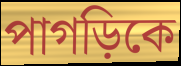
পাগড়িকে